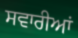
ਸਵਾਰੀਆਂ